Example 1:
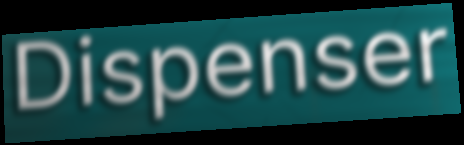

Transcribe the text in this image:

Dispenser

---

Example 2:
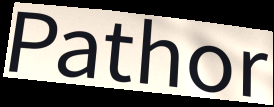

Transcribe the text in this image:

Pathor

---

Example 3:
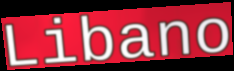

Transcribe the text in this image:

Libano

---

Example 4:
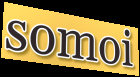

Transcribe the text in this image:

somoi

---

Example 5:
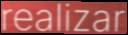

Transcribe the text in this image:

realizar